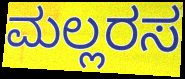
ಮಲ್ಲರಸ